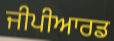
ਜੀਪੀਆਰਡ